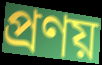
প্ৰণয়